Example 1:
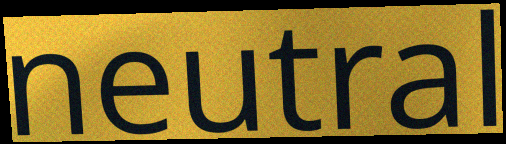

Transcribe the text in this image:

neutral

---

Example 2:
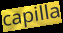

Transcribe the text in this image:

capilla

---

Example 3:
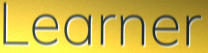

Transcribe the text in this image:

Learner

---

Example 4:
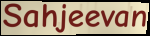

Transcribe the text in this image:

Sahjeevan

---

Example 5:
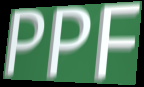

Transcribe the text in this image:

PPF